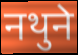
नथुने